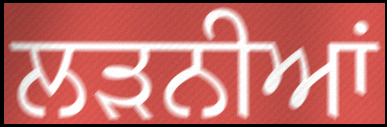
ਲੜਨੀਆਂ